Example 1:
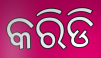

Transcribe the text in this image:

କରିଡି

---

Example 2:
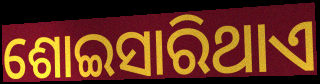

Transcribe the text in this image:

ଶୋଇସାରିଥାଏ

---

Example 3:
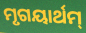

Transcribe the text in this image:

ମୃଗୟାର୍ଥମ୍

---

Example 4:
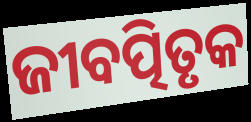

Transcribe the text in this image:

ଜୀବତ୍ପିତୃକ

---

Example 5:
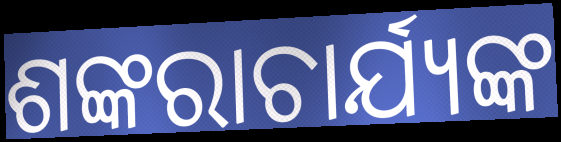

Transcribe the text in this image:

ଶଙ୍କରାଚାର୍ଯ୍ୟଙ୍କ